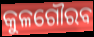
କୁଳଗୌରବ